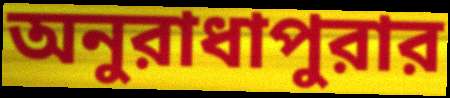
অনুরাধাপুরার